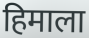
हिमाला